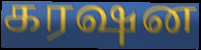
கரஷன